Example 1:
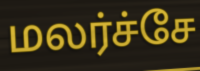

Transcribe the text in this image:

மலர்ச்சே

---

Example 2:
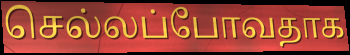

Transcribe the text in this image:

செல்லப்போவதாக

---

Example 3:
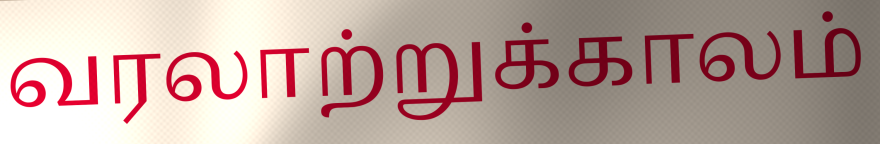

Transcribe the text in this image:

வரலாற்றுக்காலம்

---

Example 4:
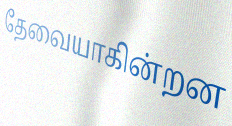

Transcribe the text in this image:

தேவையாகின்றன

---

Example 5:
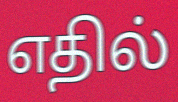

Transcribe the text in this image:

எதில்